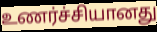
உணர்ச்சியானது